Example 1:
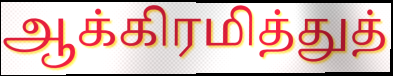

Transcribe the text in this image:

ஆக்கிரமித்துத்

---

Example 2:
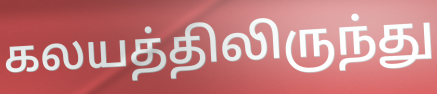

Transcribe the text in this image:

கலயத்திலிருந்து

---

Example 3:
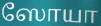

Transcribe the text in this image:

ஸோயா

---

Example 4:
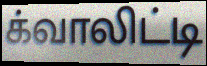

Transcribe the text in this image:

க்வாலிட்டி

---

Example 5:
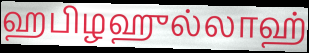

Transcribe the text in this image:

ஹபிழஹுல்லாஹ்